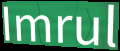
Imrul